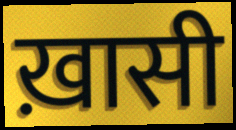
ख़ासी